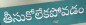
తీసుకోలేకపోవడం